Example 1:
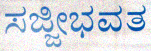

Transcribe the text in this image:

ಸಜ್ಜೀಭವತ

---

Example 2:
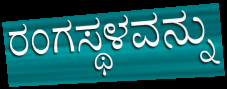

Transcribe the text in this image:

ರಂಗಸ್ಥಳವನ್ನು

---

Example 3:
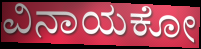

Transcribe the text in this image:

ವಿನಾಯಕೋ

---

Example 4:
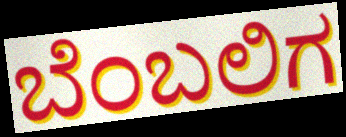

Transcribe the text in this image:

ಬೆಂಬಲಿಗ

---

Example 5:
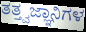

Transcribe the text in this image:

ತತ್ತ್ವಜ್ಞಾನಿಗಳ